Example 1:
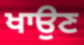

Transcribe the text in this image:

ਖਾਉਣ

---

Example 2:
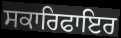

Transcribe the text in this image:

ਸਕਾਰਿਫਾਇਰ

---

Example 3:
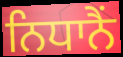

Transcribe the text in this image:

ਨਿਧਾਨੈਂ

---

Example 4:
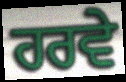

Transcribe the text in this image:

ਹਰਵੇ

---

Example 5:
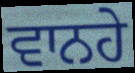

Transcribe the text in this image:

ਵਾਨਹੇ